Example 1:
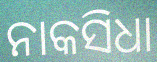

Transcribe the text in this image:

ନାକସିଧା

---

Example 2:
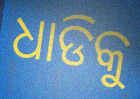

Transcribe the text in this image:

ଧାଡିକୁ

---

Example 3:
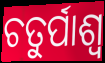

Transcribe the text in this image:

ଚତୁର୍ପାଶ୍ୱ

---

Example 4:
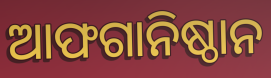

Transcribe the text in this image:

ଆଫଗାନିଷ୍ଠାନ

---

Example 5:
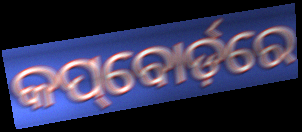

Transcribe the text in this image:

କପ୍‌ବୋର୍ଡ଼ରେ